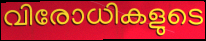
വിരോധികളുടെ